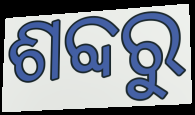
ଶବ୍ଦରୁ